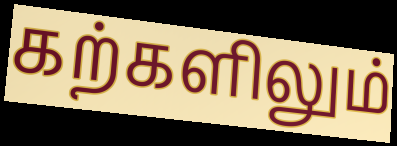
கற்களிலும்